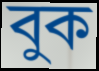
বুক